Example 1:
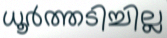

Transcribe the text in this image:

ധൂർത്തടിച്ചില്ല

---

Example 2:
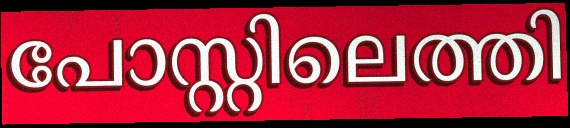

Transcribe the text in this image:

പോസ്റ്റിലെത്തി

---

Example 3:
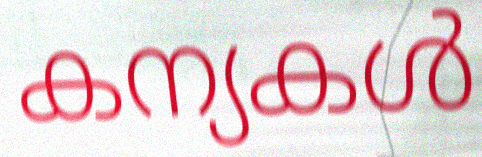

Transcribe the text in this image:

കന്യകൾ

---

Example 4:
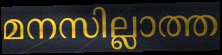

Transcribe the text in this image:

മനസില്ലാത്ത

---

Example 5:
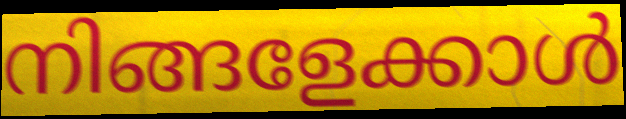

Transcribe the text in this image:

നിങ്ങളേക്കാൾ